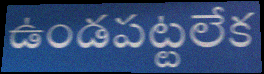
ఉండపట్టలేక